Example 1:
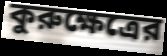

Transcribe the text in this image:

কুরুক্ষেত্রের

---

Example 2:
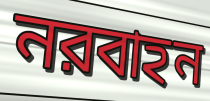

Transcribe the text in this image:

নরবাহন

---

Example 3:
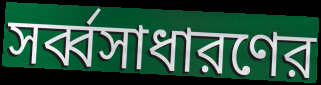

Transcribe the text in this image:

সর্ব্বসাধারণের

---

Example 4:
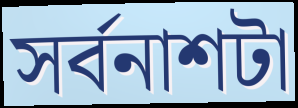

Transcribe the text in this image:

সর্বনাশটা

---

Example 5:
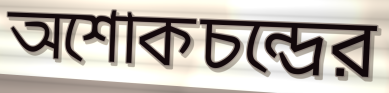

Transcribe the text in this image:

অশোকচন্দ্রের